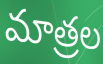
మాత్రల